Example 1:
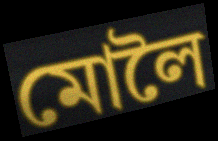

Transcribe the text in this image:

মোলৈ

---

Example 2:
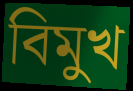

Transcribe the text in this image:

বিমুখ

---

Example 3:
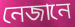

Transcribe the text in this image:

নেজানে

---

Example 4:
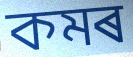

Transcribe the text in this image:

কমৰ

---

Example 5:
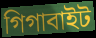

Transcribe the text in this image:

গিগাবাইট